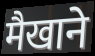
मैखाने